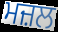
ਮਜ਼ਲ